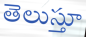
తెలుస్తూ